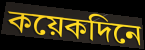
কয়েকদিনে